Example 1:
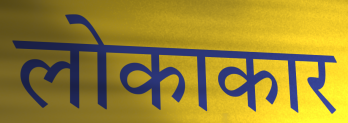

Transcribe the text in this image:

लोकाकार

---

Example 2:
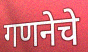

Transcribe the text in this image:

गणनेचे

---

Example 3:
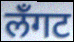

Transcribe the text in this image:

लँगट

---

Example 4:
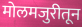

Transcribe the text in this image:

मोलमजुरीतून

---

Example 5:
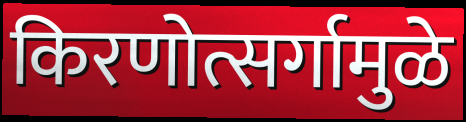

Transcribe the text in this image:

किरणोत्सर्गामुळे